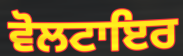
ਵੋਲਟਾਇਰ